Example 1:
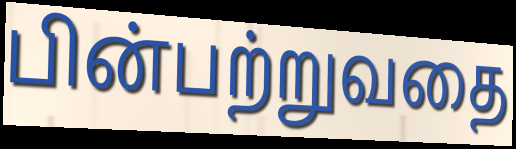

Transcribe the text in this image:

பின்பற்றுவதை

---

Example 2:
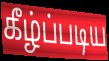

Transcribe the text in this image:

கீழ்ப்படிய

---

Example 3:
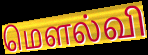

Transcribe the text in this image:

மௌல்வி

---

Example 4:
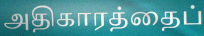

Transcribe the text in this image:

அதிகாரத்தைப்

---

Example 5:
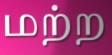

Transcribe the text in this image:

மற்ற